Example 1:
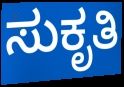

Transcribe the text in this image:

ಸುಕೃತಿ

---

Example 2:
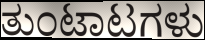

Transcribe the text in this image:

ತುಂಟಾಟಗಳು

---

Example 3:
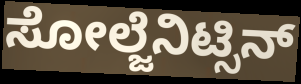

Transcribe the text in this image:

ಸೋಲ್ಜೆನಿಟ್ಸಿನ್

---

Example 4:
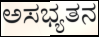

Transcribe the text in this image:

ಅಸಭ್ಯತನ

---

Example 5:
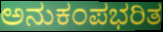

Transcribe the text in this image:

ಅನುಕಂಪಭರಿತ